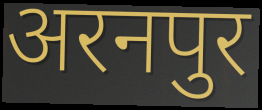
अरनपुर